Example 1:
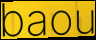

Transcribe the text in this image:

baou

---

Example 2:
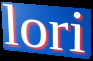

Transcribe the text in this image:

lori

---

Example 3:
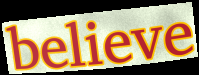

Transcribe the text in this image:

believe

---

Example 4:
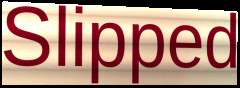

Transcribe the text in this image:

Slipped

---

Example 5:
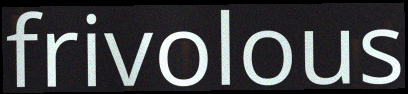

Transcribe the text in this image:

frivolous